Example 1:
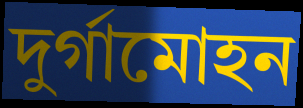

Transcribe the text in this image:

দুর্গামোহন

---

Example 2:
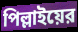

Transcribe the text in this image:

পিল্লাইয়ের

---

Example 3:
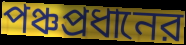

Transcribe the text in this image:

পঞ্চপ্রধানের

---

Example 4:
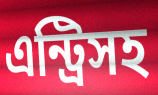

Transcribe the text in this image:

এন্ট্রিসহ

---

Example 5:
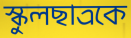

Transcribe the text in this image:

স্কুলছাত্রকে